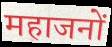
महाजनों